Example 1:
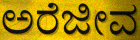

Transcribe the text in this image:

ಅರೆಜೀವ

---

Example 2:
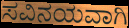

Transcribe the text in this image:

ಸವಿನಯವಾಗಿ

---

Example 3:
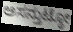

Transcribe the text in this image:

ಅಸನ್ತುಟ್ಠೋ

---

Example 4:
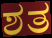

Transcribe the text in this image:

ಶತ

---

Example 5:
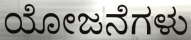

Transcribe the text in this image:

ಯೋಜನೆಗಳು